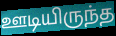
ஊடியிருந்த